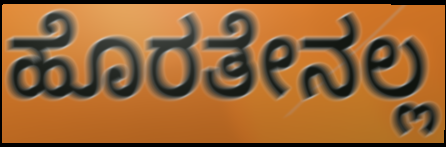
ಹೊರತೇನಲ್ಲ